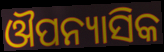
ଔପନ୍ୟାସିକ